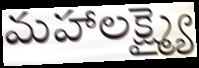
మహాలక్ష్మ్యై